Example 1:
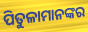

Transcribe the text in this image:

ପିତୁଳାମାନଙ୍କର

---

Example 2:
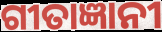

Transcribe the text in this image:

ଗୀତାଜ୍ଞାନୀ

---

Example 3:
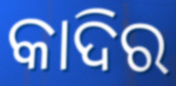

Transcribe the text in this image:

କାଦିର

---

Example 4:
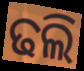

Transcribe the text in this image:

ଢଲି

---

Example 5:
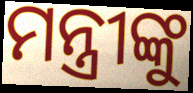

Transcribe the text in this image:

ମନ୍ତ୍ରୀଙ୍କୁ